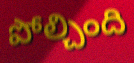
పోల్చింది